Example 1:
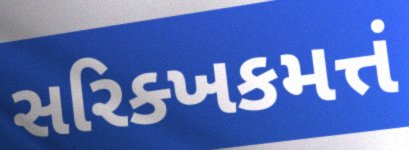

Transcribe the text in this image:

સરિક્ખકમત્તં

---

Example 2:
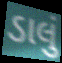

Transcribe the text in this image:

ડાલું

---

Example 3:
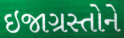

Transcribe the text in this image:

ઇજાગ્રસ્તોને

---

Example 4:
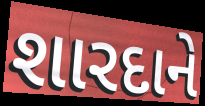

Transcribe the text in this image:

શારદાને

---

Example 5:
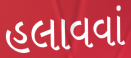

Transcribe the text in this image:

હલાવવાં